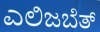
ಎಲಿಜಬೆತ್